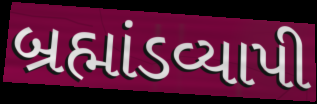
બ્રહ્માંડવ્યાપી